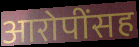
आरोपींसह